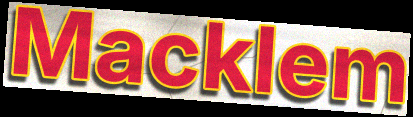
Macklem